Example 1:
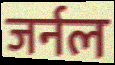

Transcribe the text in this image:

जर्नल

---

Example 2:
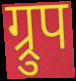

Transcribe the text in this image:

ग्र्रुप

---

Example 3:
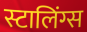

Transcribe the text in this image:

स्टालिंग्स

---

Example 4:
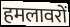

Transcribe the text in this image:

हमलावरों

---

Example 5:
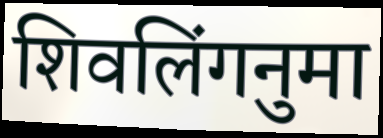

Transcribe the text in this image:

शिवलिंगनुमा